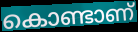
കൊണ്ടാണ്